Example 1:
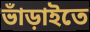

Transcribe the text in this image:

ভাঁড়াইতে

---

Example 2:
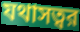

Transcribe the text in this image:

যথাসত্বর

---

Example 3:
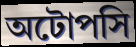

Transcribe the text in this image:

অটোপসি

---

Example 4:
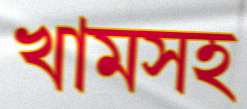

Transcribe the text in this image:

খামসহ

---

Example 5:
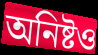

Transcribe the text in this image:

অনিষ্টও